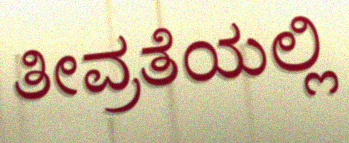
ತೀವ್ರತೆಯಲ್ಲಿ